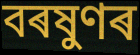
বৰষুণৰ